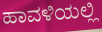
ಹಾವಳಿಯಲ್ಲಿ